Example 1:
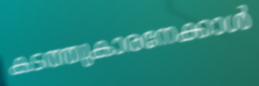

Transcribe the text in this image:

കടത്തുകാരനേക്കാൾ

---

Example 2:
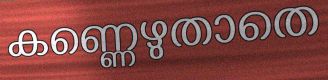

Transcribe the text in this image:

കണ്ണെഴുതാതെ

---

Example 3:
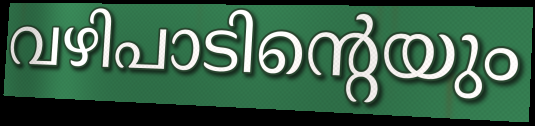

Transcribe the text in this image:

വഴിപാടിന്റെയും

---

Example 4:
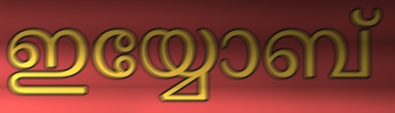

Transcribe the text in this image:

ഇയ്യോബ്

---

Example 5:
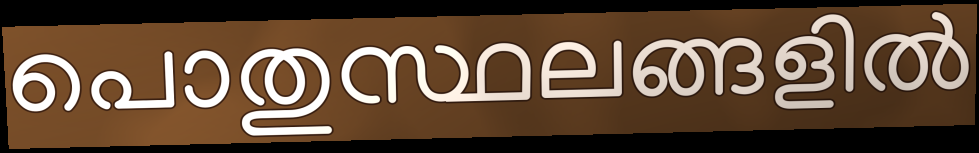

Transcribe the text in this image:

പൊതുസ്ഥലങ്ങളിൽ